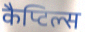
कैप्टिल्स